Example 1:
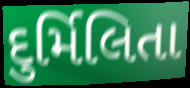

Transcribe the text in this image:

દુર્મિલિતા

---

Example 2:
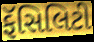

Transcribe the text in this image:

ફૅસિલિટી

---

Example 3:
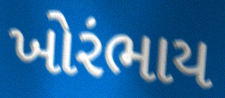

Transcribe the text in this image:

ખોરંભાય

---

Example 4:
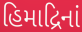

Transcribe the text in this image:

હિમાદ્રિનાં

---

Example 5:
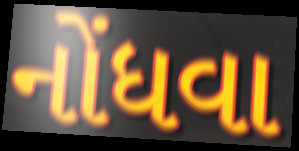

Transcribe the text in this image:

નોંધવા